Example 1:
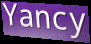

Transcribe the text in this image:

Yancy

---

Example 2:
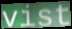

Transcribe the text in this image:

vist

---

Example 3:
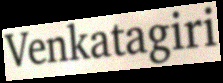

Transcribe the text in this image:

Venkatagiri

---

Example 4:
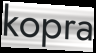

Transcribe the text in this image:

kopra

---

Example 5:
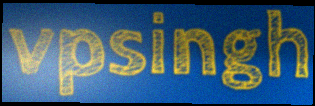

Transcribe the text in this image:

vpsingh